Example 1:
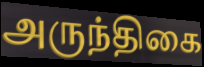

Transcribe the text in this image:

அருந்திகை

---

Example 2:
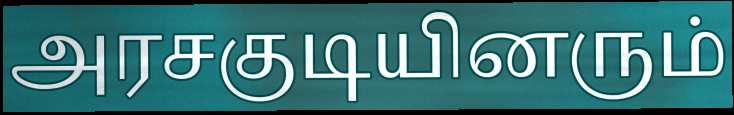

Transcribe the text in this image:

அரசகுடியினரும்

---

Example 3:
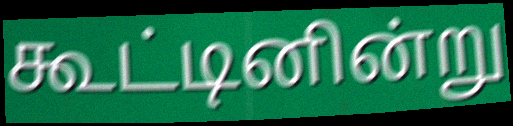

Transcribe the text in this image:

கூட்டினின்று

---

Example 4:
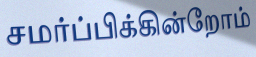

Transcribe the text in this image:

சமர்ப்பிக்கின்றோம்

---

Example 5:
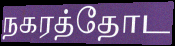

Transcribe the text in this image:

நகரத்தோட